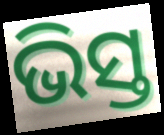
ଭିସ୍ତ